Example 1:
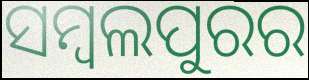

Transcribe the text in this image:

ସମ୍ୱଲପୁରର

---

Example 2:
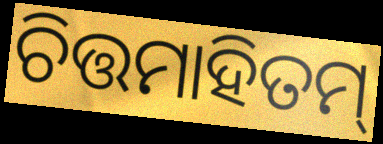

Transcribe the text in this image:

ଚିତ୍ତମାହିତମ୍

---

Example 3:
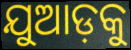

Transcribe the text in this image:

ଯୁଆଡ଼କୁ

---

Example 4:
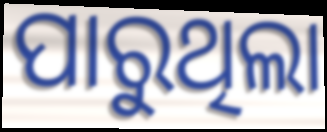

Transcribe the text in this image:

ପାରୁଥିଲା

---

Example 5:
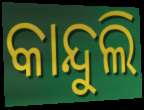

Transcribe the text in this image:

କାନ୍ଦୁଲି